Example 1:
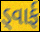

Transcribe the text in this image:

ડ્વાર્ફ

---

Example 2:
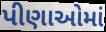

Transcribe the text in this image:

પીણાઓમાં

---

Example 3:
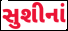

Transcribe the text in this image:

સુશીનાં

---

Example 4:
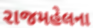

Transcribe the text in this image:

રાજમહેલના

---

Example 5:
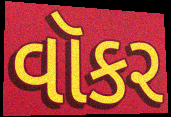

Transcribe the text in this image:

વૉકર